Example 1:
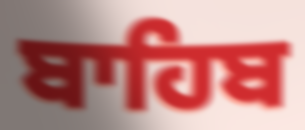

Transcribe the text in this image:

ਬਾਹਿਬ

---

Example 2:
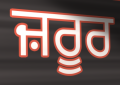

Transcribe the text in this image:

ਜ਼ਰੂਰ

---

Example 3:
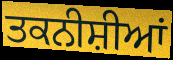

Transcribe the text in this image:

ਤਕਨੀਸ਼ੀਆਂ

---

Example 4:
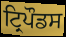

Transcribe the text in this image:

ਟ੍ਰਿਪੌਡਸ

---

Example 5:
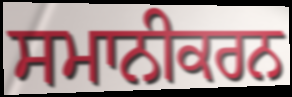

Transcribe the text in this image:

ਸਮਾਨੀਕਰਨ